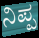
ನಿಪ್ಪ